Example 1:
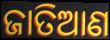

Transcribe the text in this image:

ଜାତିଆଣ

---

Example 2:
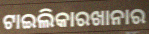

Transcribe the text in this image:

ଟାଇଲିକାରଖାନାର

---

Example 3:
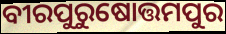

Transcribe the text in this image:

ବୀରପୁରୁଷୋତ୍ତମପୁର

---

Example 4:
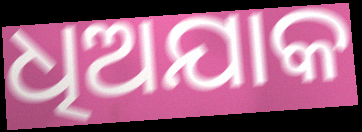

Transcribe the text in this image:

ଧିଅଯାକ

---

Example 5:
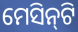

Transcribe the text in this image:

ମେସିନ୍‌ଟି